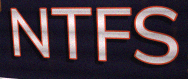
NTFS